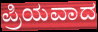
ಪ್ರಿಯವಾದ